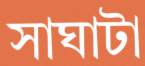
সাঘাটা